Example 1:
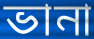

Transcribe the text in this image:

ভানা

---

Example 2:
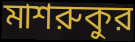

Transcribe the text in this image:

মাশরুকুর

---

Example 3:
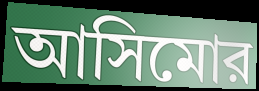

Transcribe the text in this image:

আসিমোর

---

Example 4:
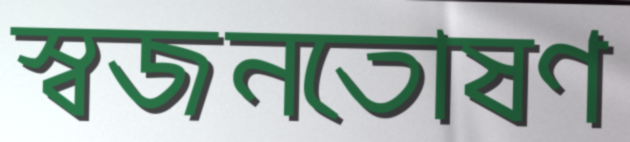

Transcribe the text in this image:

স্বজনতোষণ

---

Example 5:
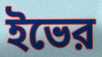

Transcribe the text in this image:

ইভের